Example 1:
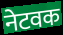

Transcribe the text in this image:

नेटवक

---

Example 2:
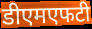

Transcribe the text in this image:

डीएमएफटी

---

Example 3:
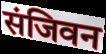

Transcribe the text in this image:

संजिवन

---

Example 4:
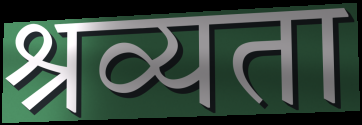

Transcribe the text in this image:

श्रव्यता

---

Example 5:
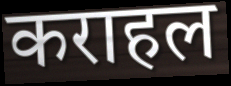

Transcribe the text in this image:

कराहल